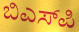
ಬಿಎಸ್‌ಪಿ